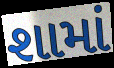
શામાં